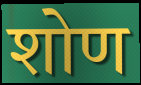
शोण